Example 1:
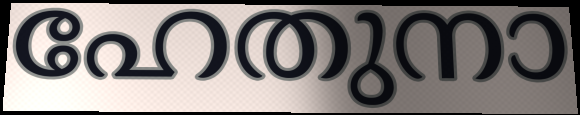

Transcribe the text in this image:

ഹേതുനാ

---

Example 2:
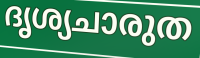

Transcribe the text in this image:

ദൃശ്യചാരുത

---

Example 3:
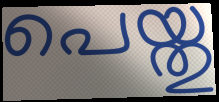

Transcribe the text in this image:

പെയ്തു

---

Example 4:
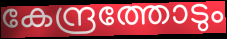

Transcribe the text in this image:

കേന്ദ്രത്തോടും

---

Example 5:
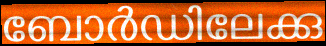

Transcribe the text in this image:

ബോർഡിലേക്കു